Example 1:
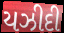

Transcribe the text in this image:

યઝીદી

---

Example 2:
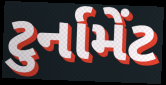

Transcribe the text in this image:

ટુર્નામેંટ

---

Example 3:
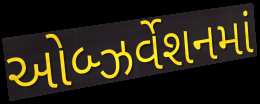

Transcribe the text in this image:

ઓબ્ઝર્વેશનમાં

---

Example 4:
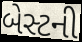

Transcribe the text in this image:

બેસ્ટની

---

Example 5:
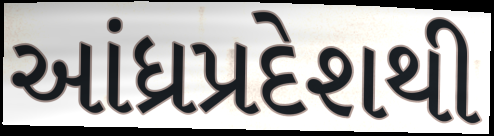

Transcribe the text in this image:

આંધ્રપ્રદેશથી